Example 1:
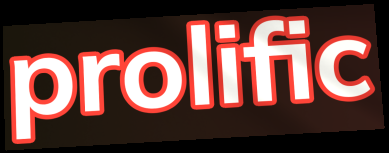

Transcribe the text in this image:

prolific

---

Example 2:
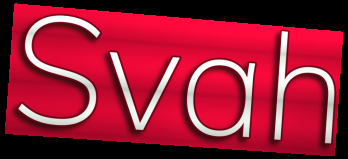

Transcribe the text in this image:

Svah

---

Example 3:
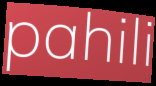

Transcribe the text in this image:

pahili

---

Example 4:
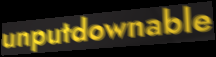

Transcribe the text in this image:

unputdownable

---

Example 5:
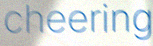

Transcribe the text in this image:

cheering